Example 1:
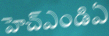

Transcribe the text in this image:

హెచ్ఎండిఏ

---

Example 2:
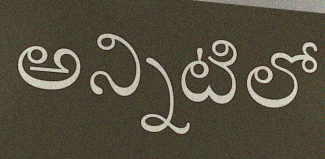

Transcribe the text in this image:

అన్నిటిలో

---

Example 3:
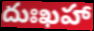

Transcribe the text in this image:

దుఃఖహా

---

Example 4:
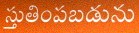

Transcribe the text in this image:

స్తుతింపబడును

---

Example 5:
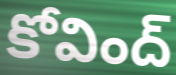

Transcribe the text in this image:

కోవింద్